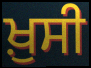
ਖ਼ੁਸੀ